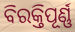
ବିରକ୍ତିପୂର୍ଣ୍ଣ